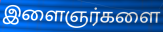
இளைஞர்களை